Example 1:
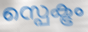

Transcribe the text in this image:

സ്പെക്ട്രം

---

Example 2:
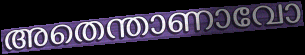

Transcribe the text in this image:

അതെന്താണാവോ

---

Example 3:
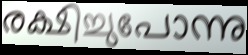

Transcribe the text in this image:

രക്ഷിച്ചുപോന്നു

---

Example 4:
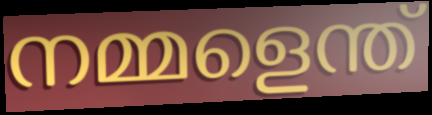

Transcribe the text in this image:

നമ്മളെന്ത്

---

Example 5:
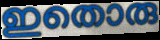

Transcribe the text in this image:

ഇതൊരു